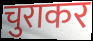
चुराकर